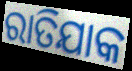
ରାତିଯାକ